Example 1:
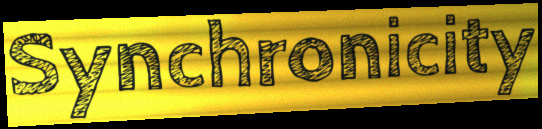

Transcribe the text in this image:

Synchronicity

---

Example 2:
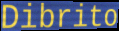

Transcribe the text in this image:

Dibrito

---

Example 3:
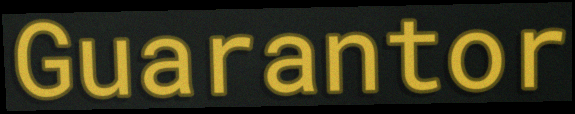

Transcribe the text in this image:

Guarantor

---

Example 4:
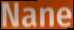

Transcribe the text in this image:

Nane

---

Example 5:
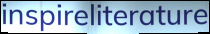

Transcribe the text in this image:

inspireliterature